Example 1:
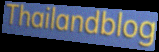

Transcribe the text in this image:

Thailandblog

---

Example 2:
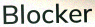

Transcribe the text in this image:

Blocker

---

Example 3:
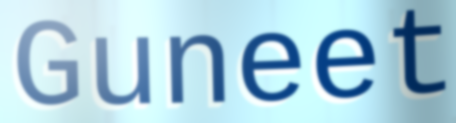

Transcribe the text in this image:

Guneet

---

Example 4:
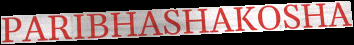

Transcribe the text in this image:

PARIBHASHAKOSHA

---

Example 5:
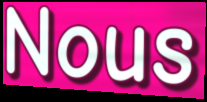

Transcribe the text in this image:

Nous